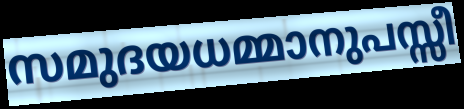
സമുദയധമ്മാനുപസ്സീ